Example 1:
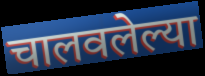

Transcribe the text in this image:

चालवलेल्या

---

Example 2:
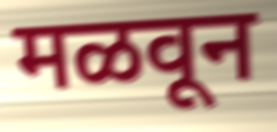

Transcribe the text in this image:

मळवून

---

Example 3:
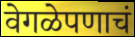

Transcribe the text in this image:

वेगळेपणाचं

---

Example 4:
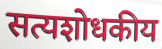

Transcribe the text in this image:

सत्यशोधकीय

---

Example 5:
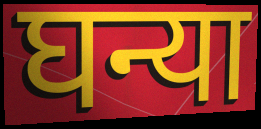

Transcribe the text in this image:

घन्या